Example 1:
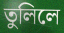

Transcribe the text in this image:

তুলিলে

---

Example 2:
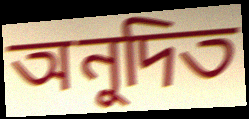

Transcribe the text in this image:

অনুদিত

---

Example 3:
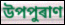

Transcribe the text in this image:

উপপুৰাণ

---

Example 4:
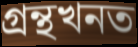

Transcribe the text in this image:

গ্ৰন্থখনত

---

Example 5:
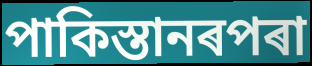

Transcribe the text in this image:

পাকিস্তানৰপৰা